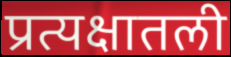
प्रत्यक्षातली